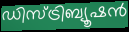
ഡിസ്ട്രിബ്യൂഷൻ